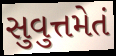
સુવુત્તમેતં